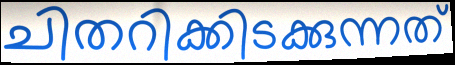
ചിതറിക്കിടക്കുന്നത്